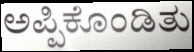
ಅಪ್ಪಿಕೊಂಡಿತು